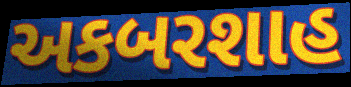
અકબરશાહ